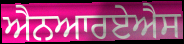
ਐਨਆਰਏਐਸ